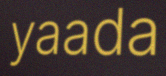
yaada